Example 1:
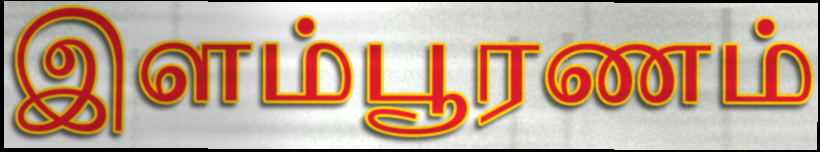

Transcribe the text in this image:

இளம்பூரணம்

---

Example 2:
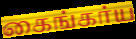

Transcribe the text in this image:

கைங்கர்ய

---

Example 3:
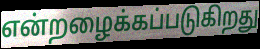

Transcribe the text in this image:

என்றழைக்கப்படுகிறது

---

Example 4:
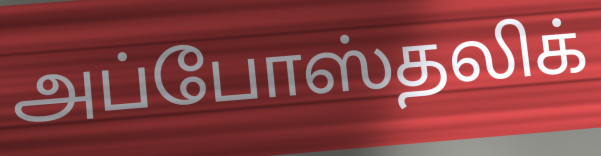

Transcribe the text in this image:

அப்போஸ்தலிக்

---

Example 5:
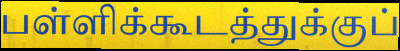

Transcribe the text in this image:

பள்ளிக்கூடத்துக்குப்